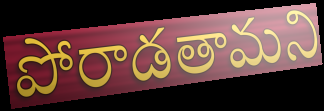
పోరాడతామని